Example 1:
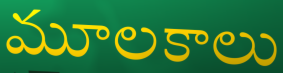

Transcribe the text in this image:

మూలకాలు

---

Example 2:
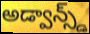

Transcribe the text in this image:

అడ్వాన్స్డ్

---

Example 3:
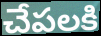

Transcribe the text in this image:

చేపలకి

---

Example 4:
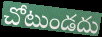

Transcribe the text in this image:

చోటుండదు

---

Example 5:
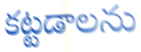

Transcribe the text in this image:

కట్టడాలను